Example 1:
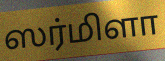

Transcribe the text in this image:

ஸர்மிளா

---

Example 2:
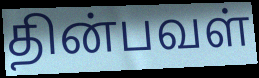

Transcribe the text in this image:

தின்பவள்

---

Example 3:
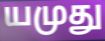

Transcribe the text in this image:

யமுது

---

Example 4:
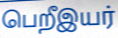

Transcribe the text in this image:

பெறீஇயர்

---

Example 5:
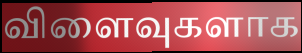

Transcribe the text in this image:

விளைவுகளாக